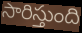
సారిస్తుంది